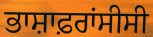
ਭਾਸ਼ਾਫ਼ਰਾਂਸੀਸੀ